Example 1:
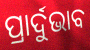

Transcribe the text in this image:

ପ୍ରାର୍ଦୁଭାବ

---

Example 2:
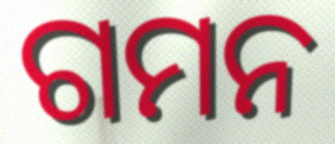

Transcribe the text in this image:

ଗମନ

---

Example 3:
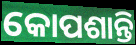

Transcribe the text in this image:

କୋପଶାନ୍ତି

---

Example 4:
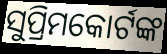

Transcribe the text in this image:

ସୁପ୍ରିମକୋର୍ଟଙ୍କ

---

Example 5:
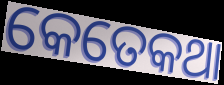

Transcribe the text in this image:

କେତେକଥା